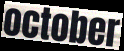
october